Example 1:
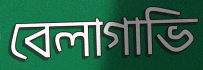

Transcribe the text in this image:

বেলাগাভি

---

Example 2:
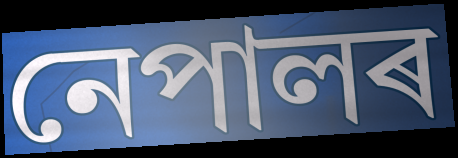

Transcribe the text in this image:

নেপালৰ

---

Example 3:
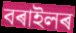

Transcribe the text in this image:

বৰাইলৰ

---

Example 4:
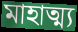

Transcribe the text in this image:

মাহাত্ম্য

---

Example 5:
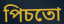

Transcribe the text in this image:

পিচতো